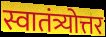
स्वातंत्र्योत्तर